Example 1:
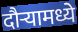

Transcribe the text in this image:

दौऱ्यामध्ये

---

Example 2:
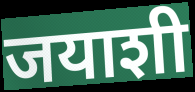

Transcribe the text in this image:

जयाशी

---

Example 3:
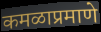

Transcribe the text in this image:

कमळाप्रमाणे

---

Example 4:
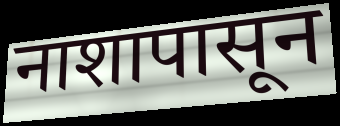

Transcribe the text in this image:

नाशापासून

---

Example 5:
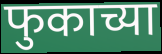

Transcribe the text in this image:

फुकाच्या